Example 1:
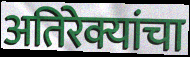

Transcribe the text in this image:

अतिरेक्यांचा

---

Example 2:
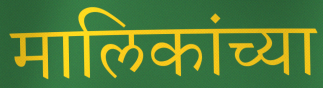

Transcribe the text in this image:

मालिकांच्या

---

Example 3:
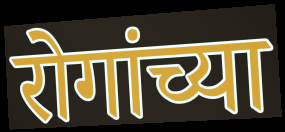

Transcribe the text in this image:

रोगांच्या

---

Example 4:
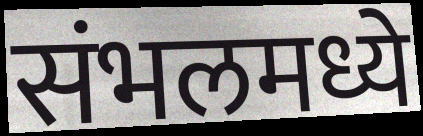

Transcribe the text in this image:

संभलमध्ये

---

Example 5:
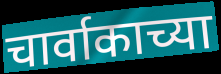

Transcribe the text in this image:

चार्वाकाच्या